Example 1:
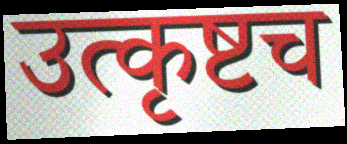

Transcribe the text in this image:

उत्कृष्टच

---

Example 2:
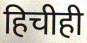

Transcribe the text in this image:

हिचीही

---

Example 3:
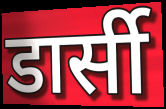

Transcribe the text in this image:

डार्सी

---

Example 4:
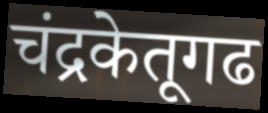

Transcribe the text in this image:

चंद्रकेतूगढ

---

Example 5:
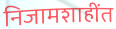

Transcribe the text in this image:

निजामशाहींत